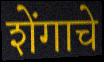
शेंगाचे